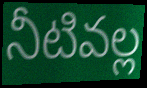
నీటివల్ల